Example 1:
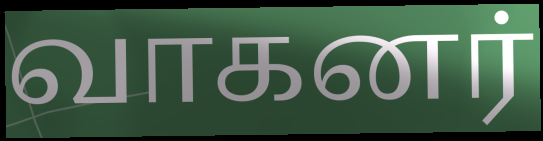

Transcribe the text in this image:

வாகனர்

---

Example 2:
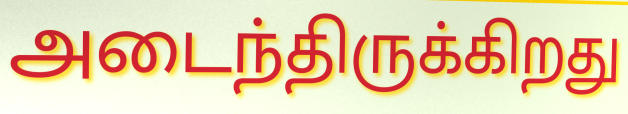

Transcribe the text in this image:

அடைந்திருக்கிறது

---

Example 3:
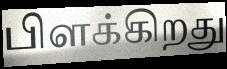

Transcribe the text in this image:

பிளக்கிறது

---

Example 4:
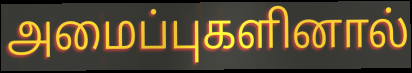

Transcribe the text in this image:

அமைப்புகளினால்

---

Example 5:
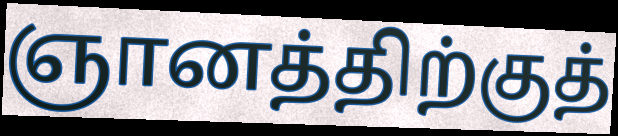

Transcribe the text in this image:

ஞானத்திற்குத்